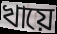
খায়ে